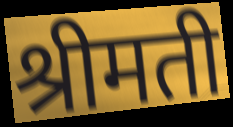
श्रीमती